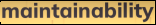
maintainability